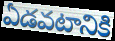
ఏడవటానికి